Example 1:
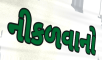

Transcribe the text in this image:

નીકળવાનો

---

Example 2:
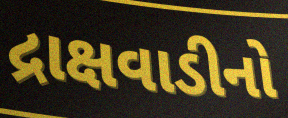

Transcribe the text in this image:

દ્રાક્ષવાડીનો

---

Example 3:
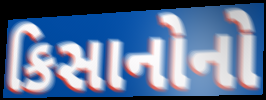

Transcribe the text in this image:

કિસાનોનો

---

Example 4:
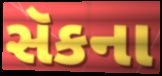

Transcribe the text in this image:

સૅકના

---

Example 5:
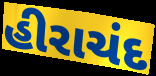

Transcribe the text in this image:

હીરાચંદ